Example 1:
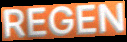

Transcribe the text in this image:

REGEN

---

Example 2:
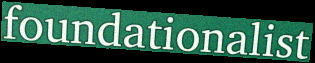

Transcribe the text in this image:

foundationalist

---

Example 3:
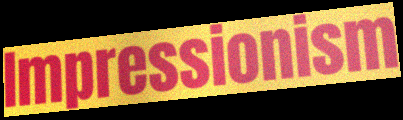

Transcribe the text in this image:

Impressionism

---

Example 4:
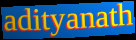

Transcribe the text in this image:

adityanath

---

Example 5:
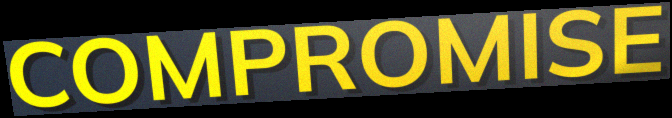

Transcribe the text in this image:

COMPROMISE